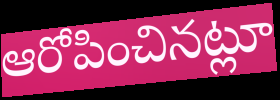
ఆరోపించినట్లూ